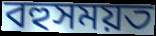
বহুসময়ত